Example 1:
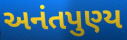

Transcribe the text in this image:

અનંતપુણ્ય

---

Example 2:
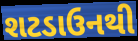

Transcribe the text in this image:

શટડાઉનથી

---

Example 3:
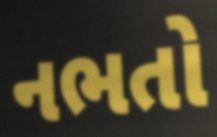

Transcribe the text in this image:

નભતો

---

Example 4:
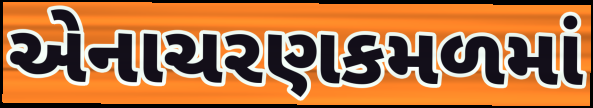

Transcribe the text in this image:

એનાચરણકમળમાં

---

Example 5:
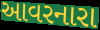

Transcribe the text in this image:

આવરનારા